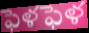
ఫెళఫెళ